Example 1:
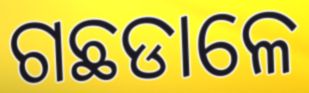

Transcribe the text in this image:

ଗଛଡାଳେ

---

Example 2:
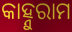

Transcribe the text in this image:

କାହ୍ନୁରାମ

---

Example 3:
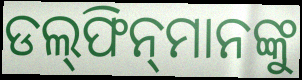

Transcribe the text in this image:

ଡଲ୍‍ଫିନ୍‍ମାନଙ୍କୁ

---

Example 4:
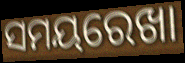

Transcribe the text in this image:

ସମୟରେଖା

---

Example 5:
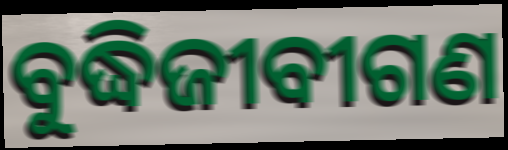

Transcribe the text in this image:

ବୁଦ୍ଧିଜୀବୀଗଣ